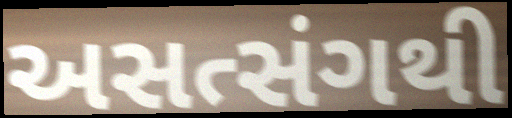
અસત્સંગથી